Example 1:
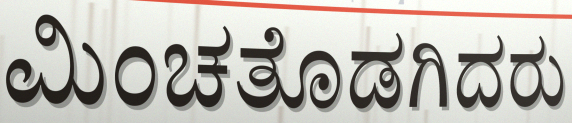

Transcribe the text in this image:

ಮಿಂಚತೊಡಗಿದರು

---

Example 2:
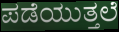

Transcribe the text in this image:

ಪಡೆಯುತ್ತಲೆ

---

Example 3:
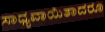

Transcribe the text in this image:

ಸಾಧ್ಯವಾಯಿತಾದರೂ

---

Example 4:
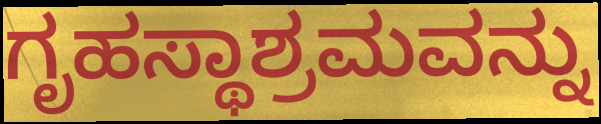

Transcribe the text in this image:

ಗೃಹಸ್ಥಾಶ್ರಮವನ್ನು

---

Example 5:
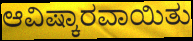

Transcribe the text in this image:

ಆವಿಷ್ಕಾರವಾಯಿತು